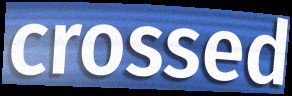
crossed